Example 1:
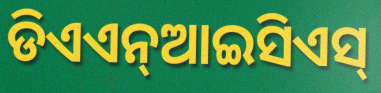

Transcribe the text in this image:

ଡିଏଏନ୍ଆଇସିଏସ୍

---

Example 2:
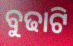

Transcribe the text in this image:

ବୁଢାଟି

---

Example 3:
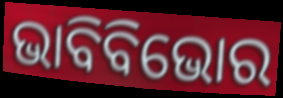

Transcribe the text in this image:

ଭାବିବିଭୋର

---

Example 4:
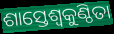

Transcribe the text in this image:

ଶାସ୍ତେଶ୍ବକୁଣ୍ଠିତା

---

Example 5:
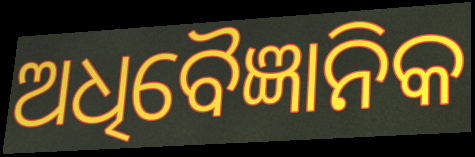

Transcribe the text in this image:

ଅଧିବୈଜ୍ଞାନିକ